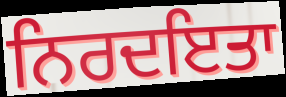
ਨਿਰਦਇਤਾ